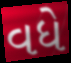
વધે